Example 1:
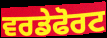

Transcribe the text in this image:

ਵਰਡੇਫੋਰਟ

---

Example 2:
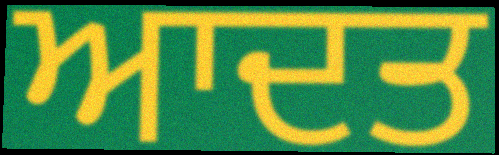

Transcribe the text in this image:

ਆਦਤ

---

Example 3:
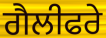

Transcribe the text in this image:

ਗੈਲੀਫਰੇ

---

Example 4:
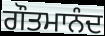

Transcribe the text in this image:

ਗੌਤਮਾਨੰਦ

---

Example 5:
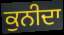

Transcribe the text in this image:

ਕੁਨੀਦਾ